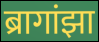
ब्रागांझा